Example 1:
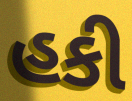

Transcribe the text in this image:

હકી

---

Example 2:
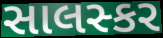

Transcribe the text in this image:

સાલસ્કર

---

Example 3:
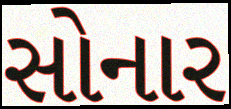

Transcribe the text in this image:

સોનાર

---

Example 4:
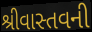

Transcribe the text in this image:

શ્રીવાસ્તવની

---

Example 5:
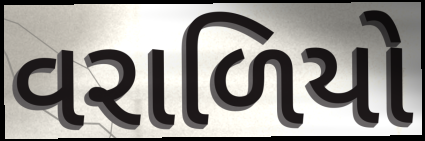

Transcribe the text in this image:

વરાળિયો